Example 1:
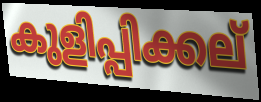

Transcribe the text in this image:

കുളിപ്പിക്കല്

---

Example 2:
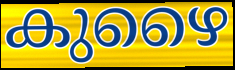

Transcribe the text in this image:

കുഴൈ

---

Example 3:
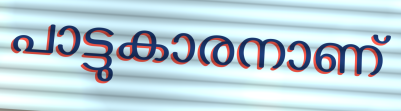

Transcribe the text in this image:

പാട്ടുകാരനാണ്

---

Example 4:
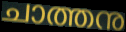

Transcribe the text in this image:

ചാത്തനു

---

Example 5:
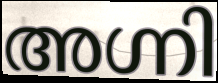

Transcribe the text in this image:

അഗ്നി